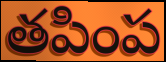
తపింప